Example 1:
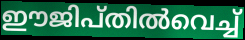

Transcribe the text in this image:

ഈജിപ്തിൽവെച്ച്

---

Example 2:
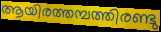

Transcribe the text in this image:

ആയിരത്തമ്പത്തിരണ്ടു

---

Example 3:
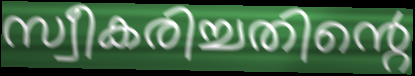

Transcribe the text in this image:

സ്വീകരിച്ചതിന്റെ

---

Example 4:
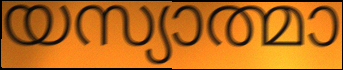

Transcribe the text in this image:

യസ്യാത്മാ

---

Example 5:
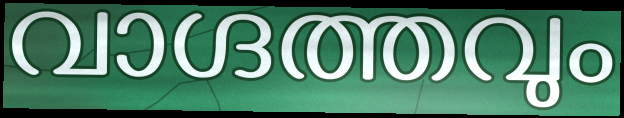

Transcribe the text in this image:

വാഗ്ദത്തവും